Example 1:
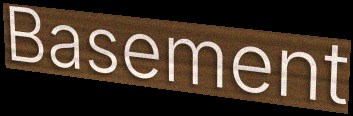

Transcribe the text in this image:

Basement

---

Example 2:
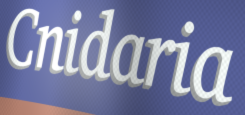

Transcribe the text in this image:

Cnidaria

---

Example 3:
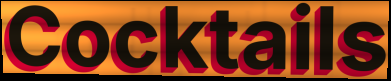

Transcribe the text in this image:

Cocktails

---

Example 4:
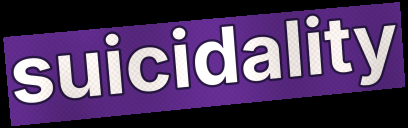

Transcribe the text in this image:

suicidality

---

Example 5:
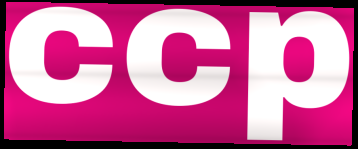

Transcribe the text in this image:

ccp